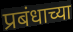
प्रबंधाच्या